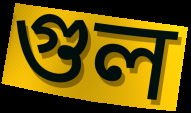
গুল